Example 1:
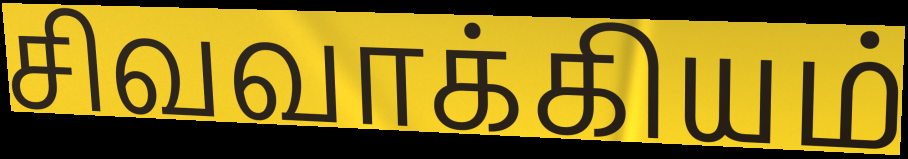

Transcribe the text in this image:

சிவவாக்கியம்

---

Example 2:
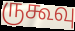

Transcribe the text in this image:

ருகூவு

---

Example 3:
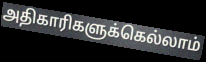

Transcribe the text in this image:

அதிகாரிகளுக்கெல்லாம்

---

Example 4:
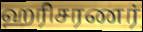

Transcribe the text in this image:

ஹரிசரணர்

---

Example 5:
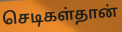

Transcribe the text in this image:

செடிகள்தான்